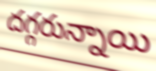
దగ్గరున్నాయి